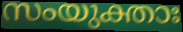
സംയുക്താഃ